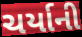
ચર્યાની